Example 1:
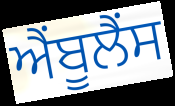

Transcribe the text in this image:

ਐਂਬੂਲੈਂਸ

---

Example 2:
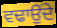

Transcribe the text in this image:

ਵਢਾਉਂਦੇ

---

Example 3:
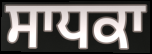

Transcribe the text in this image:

ਸਾਧਕਾ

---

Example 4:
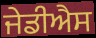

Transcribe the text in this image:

ਜੇਡੀਐਸ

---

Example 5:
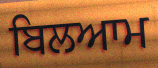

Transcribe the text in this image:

ਬਿਲਆਮ